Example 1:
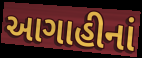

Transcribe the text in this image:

આગાહીનાં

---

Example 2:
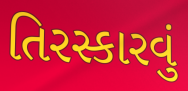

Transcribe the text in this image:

તિરસ્કારવું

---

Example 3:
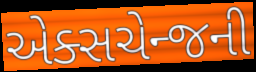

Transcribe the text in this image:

એક્સચેન્જની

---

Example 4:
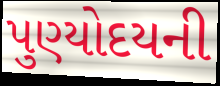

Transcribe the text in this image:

પુણ્યોદયની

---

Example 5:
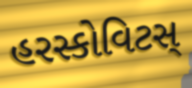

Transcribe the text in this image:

હરસ્કોવિટસ્